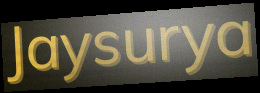
Jaysurya